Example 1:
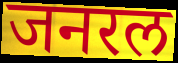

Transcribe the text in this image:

जनरल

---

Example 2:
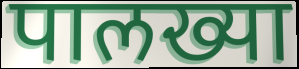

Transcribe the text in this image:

पालख्या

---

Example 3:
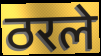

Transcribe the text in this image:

ठरले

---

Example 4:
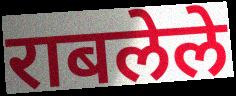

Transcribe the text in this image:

राबलेले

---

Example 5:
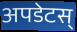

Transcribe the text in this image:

अपडेटस्